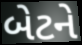
બેટને